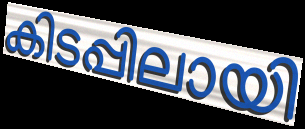
കിടപ്പിലായി